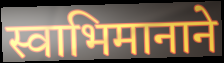
स्वाभिमानाने